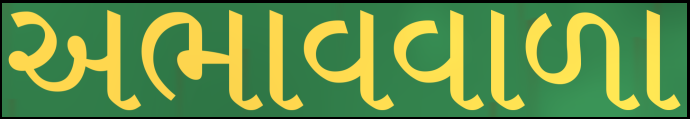
અભાવવાળા